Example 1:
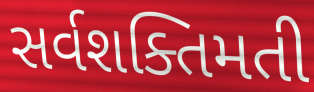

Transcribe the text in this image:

સર્વશક્તિમતી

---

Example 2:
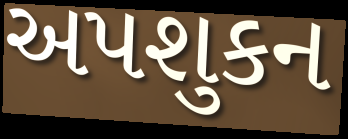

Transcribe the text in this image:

અપશુકન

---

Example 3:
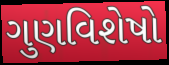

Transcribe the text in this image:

ગુણવિશેષો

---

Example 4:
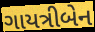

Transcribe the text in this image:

ગાયત્રીબેન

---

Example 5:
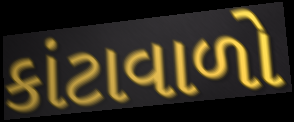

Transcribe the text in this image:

કાંટાવાળો